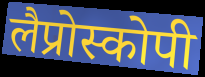
लैप्रोस्कोपी